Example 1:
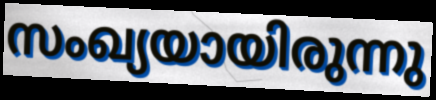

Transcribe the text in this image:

സംഖ്യയായിരുന്നു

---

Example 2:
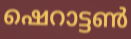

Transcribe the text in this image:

ഷെറാട്ടൺ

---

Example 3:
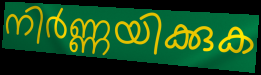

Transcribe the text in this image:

നിർണ്ണയിക്കുക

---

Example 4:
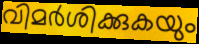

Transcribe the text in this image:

വിമർശിക്കുകയും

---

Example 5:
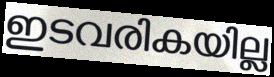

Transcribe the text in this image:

ഇടവരികയില്ല